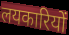
लयकारियों